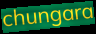
chungara